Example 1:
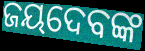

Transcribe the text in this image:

ଜୟଦେବଙ୍କ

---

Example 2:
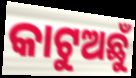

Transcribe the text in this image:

କାଟୁଅଛୁଁ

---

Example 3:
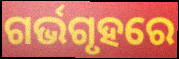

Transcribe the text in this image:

ଗର୍ଭଗୃହରେ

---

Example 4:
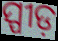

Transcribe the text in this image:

ସ୍ପୀଡ଼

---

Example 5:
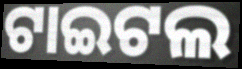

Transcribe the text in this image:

ଟାଇଟଲ